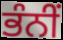
ਭੰਨੀਂ